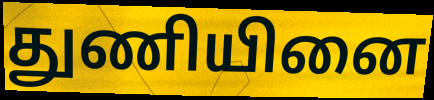
துணியினை